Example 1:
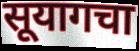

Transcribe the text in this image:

सूयागचा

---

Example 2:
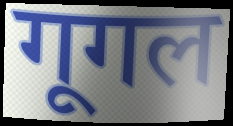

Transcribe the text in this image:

गूगल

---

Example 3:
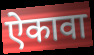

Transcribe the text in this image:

ऐकावा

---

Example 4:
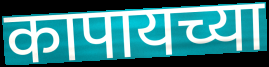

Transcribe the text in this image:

कापायच्या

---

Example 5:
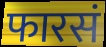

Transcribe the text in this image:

फारसं